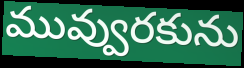
మువ్వురకును